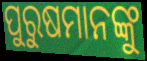
ପୁରୁଷମାନଙ୍କୁ